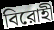
বিরোহী